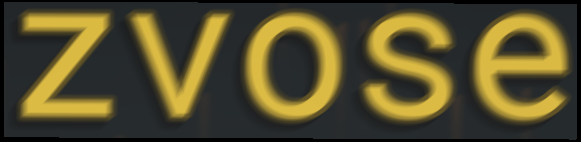
zvose